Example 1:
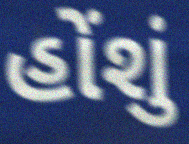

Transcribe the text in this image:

હોંશું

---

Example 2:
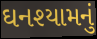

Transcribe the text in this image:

ઘનશ્યામનું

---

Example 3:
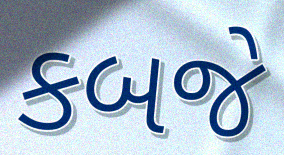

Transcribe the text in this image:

કબજે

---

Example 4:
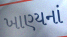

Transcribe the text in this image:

ખાણ્યનાં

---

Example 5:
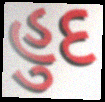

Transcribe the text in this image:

હુદ